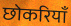
छोकरियाँ